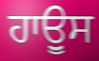
ਹਾਊੁਸ